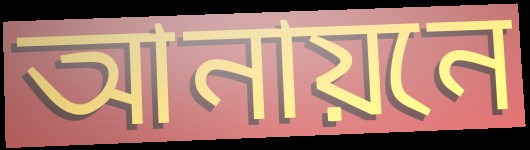
আনায়নে